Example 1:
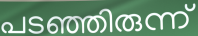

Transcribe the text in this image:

പടഞ്ഞിരുന്ന്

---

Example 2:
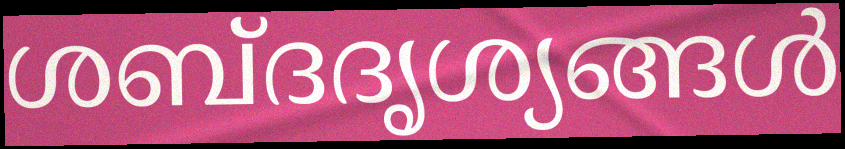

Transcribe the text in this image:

ശബ്ദദൃശ്യങ്ങൾ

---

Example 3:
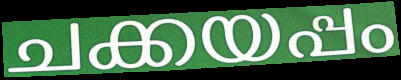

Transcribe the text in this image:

ചക്കയപ്പം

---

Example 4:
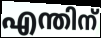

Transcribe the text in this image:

എന്തിന്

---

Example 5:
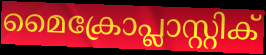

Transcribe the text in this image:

മൈക്രോപ്ലാസ്റ്റിക്